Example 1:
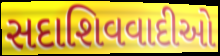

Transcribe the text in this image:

સદાશિવવાદીઓ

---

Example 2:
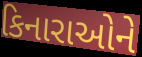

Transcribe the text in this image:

કિનારાઓને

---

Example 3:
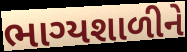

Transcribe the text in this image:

ભાગ્યશાળીને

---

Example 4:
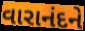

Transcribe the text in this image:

વારાનંદને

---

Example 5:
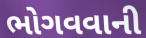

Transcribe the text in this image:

ભોગવવાની